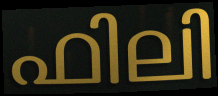
ഫിലി